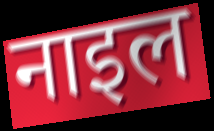
नाइल